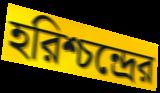
হরিশ্চন্দ্রের